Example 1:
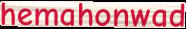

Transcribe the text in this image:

hemahonwad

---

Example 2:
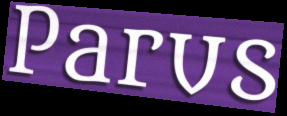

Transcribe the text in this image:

Parus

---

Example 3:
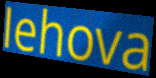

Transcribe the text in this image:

Iehova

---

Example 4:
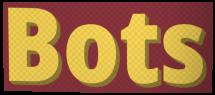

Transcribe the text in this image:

Bots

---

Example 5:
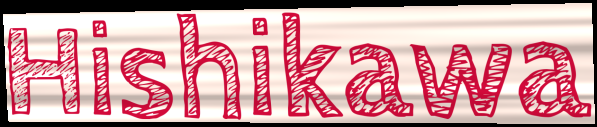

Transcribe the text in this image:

Hishikawa